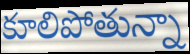
కూలిపోతున్నా